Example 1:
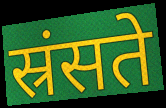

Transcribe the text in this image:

स्रंसते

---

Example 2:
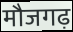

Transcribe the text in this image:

मौजगढ़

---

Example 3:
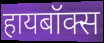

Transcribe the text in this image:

हायबॉक्स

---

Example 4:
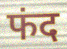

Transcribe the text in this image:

फंद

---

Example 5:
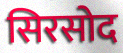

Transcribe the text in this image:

सिरसोद